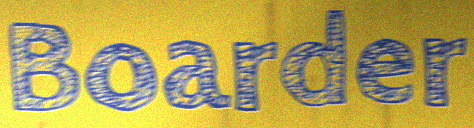
Boarder